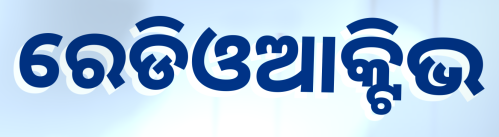
ରେଡିଓଆକ୍ଟିଭ